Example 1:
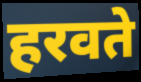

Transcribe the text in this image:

हरवते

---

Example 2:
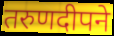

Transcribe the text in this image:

तरुणदीपने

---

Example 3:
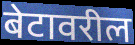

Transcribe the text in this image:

बेटावरील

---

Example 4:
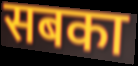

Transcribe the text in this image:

सबका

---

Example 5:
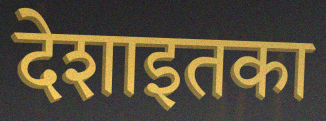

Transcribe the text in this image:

देशाइतका